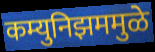
कम्युनिझममुळे